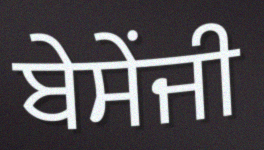
ਬੇਸੇਂਜੀ